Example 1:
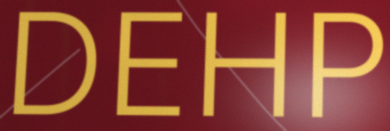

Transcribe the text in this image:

DEHP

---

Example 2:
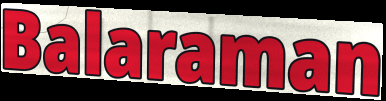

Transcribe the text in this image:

Balaraman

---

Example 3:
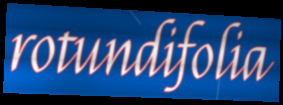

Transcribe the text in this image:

rotundifolia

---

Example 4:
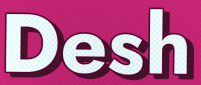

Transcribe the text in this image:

Desh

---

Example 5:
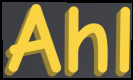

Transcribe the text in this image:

Ahl